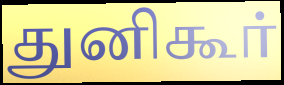
துனிகூர்